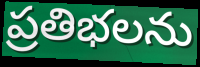
ప్రతిభలను